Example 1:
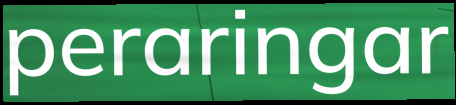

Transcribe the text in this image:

peraringar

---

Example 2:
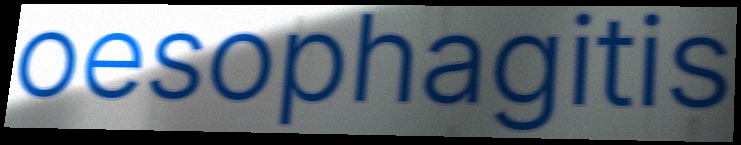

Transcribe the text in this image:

oesophagitis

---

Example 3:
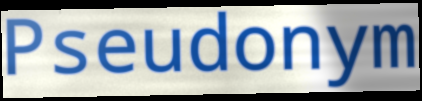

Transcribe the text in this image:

Pseudonym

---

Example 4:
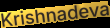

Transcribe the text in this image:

Krishnadeva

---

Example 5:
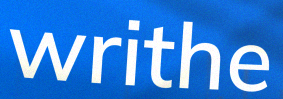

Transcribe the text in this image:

writhe